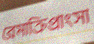
রেমাক্রিপ্রাংসা